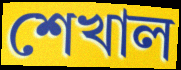
শেখাল